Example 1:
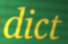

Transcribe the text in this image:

dict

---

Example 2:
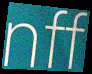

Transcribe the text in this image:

nff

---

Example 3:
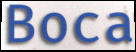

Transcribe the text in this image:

Boca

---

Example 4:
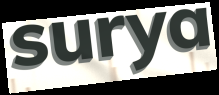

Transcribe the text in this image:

surya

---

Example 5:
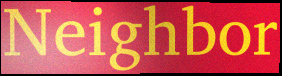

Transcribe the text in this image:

Neighbor